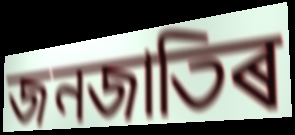
জনজাতিৰ